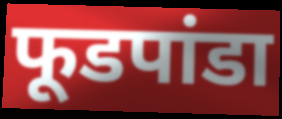
फूडपांडा